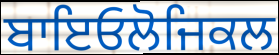
ਬਾਇਓਲੋਜਿਕਲ